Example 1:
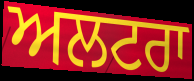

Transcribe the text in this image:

ਅਲਟਰਾ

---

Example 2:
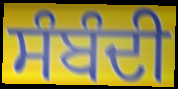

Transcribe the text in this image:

ਸੰਬੰਦੀ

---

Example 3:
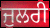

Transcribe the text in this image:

ਜੁਲਰੀ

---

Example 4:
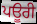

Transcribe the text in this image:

ਪਊਰੀ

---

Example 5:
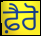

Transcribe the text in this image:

ਫ਼ੈਰੋ